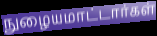
நுழையமாட்டார்கள்